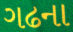
ગઢના